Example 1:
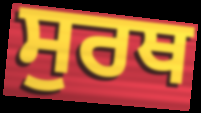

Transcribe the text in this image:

ਸੁਰਥ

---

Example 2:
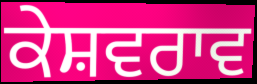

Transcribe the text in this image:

ਕੇਸ਼ਵਰਾਵ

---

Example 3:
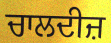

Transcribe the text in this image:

ਚਾਲਦੀਜ਼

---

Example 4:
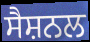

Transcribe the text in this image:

ਸੈਸ਼ਨਲ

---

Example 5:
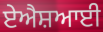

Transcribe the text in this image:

ਏਐਸ਼ਆਈ